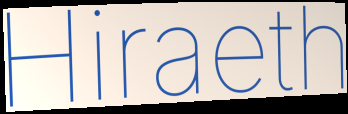
Hiraeth